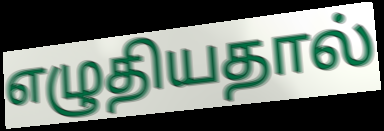
எழுதியதால்